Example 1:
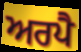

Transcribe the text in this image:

ਅਰਪੈ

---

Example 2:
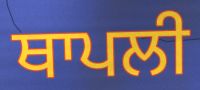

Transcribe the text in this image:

ਥਾਪਲੀ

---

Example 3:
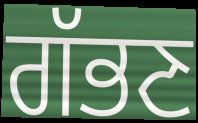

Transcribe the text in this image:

ਗੱਭਣ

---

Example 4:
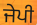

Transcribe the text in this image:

ਜੇਪੀ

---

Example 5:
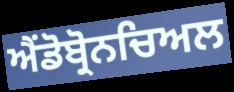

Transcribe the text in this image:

ਐਂਡੋਬ੍ਰੋਨਚਿਅਲ